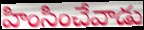
హింసించేవాడు